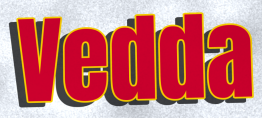
Vedda